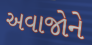
અવાજોને